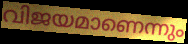
വിജയമാണെന്നും